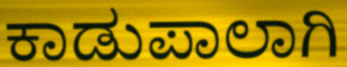
ಕಾಡುಪಾಲಾಗಿ